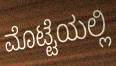
ಮೊಟ್ಟೆಯಲ್ಲಿ